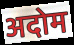
अदोम